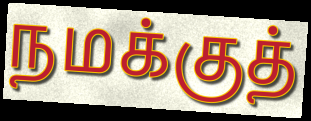
நமக்குத்